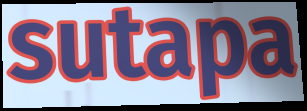
sutapa